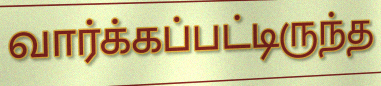
வார்க்கப்பட்டிருந்த